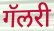
गॅलरी